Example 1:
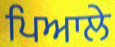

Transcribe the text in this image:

ਪਿਆਲੇ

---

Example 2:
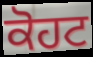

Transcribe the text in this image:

ਕੋਹਟ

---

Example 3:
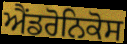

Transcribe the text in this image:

ਐਂਡਰੋਨਿਕੋਸ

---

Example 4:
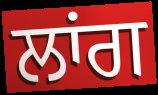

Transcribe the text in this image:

ਲਾਂਗ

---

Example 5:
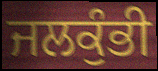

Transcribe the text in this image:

ਜਲਕੁੰਭੀ